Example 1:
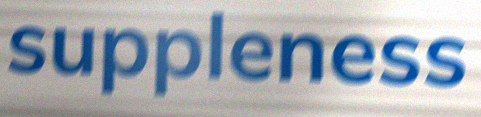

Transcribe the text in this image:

suppleness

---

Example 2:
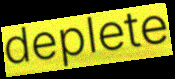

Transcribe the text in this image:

deplete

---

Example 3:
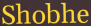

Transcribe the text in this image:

Shobhe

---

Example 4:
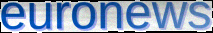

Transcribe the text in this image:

euronews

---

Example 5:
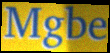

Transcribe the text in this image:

Mgbe